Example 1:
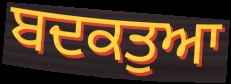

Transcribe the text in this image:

ਬਦਕਤੁਆ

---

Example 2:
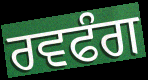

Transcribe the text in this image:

ਰਵਫੰਗ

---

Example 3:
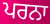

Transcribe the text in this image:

ਪਰਨਾ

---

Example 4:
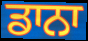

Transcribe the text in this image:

ਡਾਨਾ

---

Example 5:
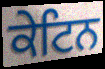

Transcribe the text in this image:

ਕੇਟਿਨ